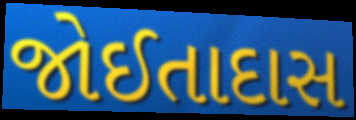
જોઈતાદાસ